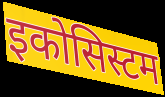
इकोसिस्टम